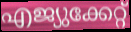
എജ്യുക്കേറ്റ്